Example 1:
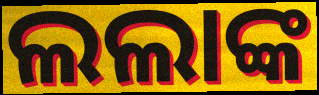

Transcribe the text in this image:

ଲଲାଙ୍କ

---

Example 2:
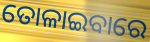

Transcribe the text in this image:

ତୋଳାଇବାରେ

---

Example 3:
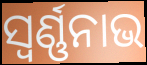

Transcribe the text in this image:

ସ୍ବର୍ଣ୍ଣନାଭ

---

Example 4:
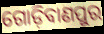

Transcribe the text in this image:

ଗୋଡ଼ିବାଣପୁର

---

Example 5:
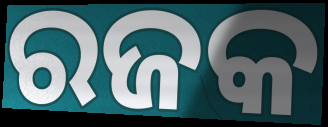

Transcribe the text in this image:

ରଜକ